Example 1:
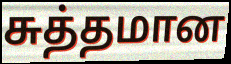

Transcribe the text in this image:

சுத்தமான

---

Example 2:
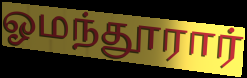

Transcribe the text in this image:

ஓமந்தூரார்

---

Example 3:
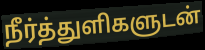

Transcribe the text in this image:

நீர்த்துளிகளுடன்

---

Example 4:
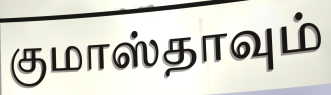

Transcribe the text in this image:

குமாஸ்தாவும்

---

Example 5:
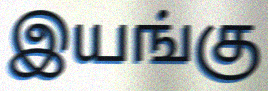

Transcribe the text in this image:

இயங்கு